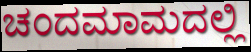
ಚಂದಮಾಮದಲ್ಲಿ